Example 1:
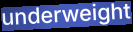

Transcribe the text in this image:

underweight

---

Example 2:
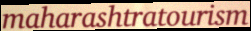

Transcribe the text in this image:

maharashtratourism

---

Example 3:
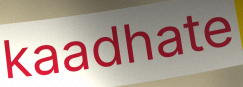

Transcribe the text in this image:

kaadhate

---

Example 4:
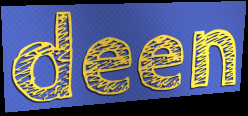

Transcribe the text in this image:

deen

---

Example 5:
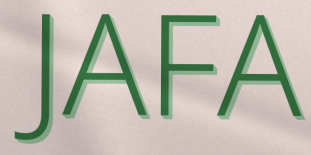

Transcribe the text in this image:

JAFA